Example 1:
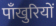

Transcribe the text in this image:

पाँखुरियों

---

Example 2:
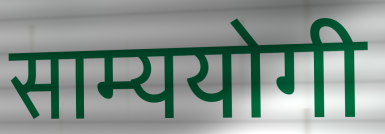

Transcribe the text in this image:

साम्ययोगी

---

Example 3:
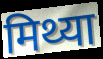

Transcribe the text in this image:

मिथ्या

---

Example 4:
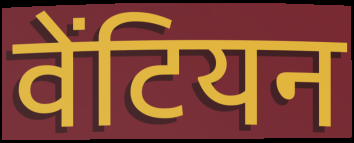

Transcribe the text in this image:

वेंटियन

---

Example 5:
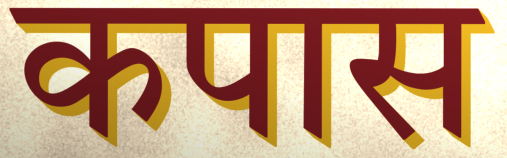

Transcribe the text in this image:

कपास